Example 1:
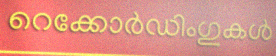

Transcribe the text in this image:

റെക്കോർഡിംഗുകൾ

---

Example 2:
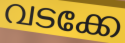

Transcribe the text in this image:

വടക്കേ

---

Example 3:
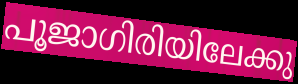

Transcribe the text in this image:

പൂജാഗിരിയിലേക്കു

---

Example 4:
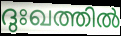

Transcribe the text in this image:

ദുഃഖത്തിൽ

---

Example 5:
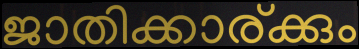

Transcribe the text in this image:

ജാതിക്കാര്ക്കും